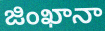
జింఖానా